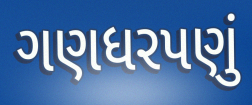
ગણધરપણું